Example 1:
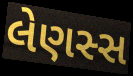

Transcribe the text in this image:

લેણસ્સ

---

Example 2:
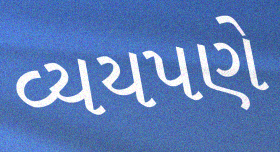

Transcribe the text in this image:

વ્યયપણે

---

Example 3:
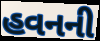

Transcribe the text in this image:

હવનની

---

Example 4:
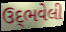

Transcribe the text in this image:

ઉદ્‌ભવેલી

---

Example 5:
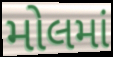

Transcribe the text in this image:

મોલમાં